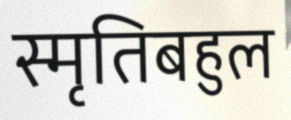
स्मृतिबहुल